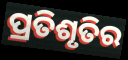
ପ୍ରତିଶୃତିର